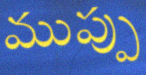
ముప్పు